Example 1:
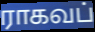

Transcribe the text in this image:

ராகவப்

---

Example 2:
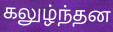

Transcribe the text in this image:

கலுழ்ந்தன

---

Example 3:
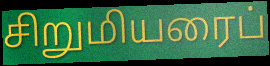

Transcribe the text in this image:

சிறுமியரைப்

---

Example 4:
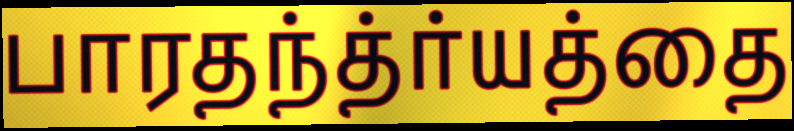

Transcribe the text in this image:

பாரதந்த்ர்யத்தை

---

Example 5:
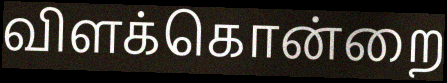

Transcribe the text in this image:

விளக்கொன்றை